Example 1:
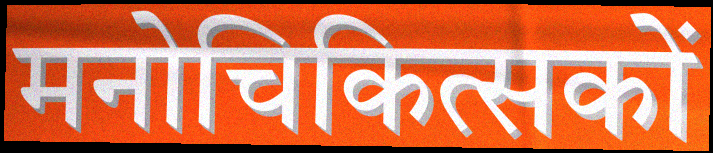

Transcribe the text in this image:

मनोचिकित्सकों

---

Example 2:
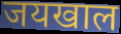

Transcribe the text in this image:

जयखाल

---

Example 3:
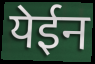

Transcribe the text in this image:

येईन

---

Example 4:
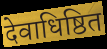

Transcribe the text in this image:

देवाधिष्ठित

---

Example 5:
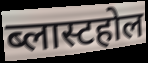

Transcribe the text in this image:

ब्लास्टहोल